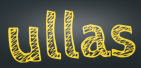
ullas